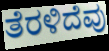
ತೆರಳಿದೆವು